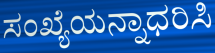
ಸಂಖ್ಯೆಯನ್ನಾಧರಿಸಿ